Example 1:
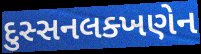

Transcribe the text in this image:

દુસ્સનલક્ખણેન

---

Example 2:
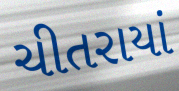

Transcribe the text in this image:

ચીતરાયાં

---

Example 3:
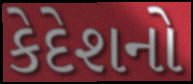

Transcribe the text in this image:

કેદેશનો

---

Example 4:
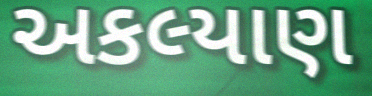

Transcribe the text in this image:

અકલ્યાણ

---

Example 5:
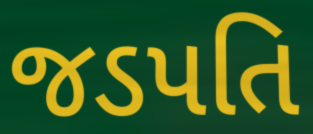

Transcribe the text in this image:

જડપતિ